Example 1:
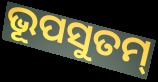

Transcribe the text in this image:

ଭୂପସୁତମ୍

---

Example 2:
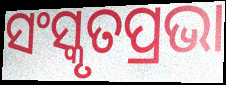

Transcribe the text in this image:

ସଂସ୍କୃତପ୍ରଭା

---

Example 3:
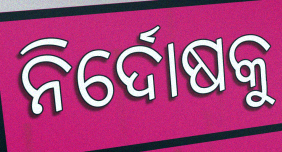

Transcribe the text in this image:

ନିର୍ଦୋଷକୁ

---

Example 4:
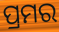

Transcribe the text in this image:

ପ୍ରମର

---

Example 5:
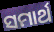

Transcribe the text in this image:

ସମାର୍ଥ